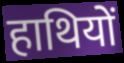
हाथियों